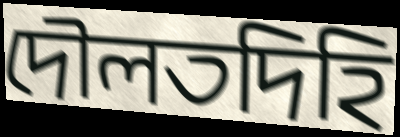
দৌলতদিহি